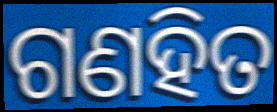
ଗଣହିତ